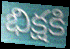
భిక్షకి